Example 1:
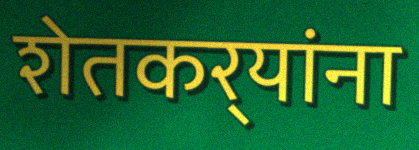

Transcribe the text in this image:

शेतकर्‍यांना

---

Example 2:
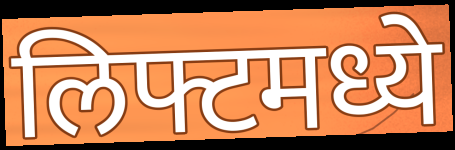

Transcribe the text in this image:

लिफ्टमध्ये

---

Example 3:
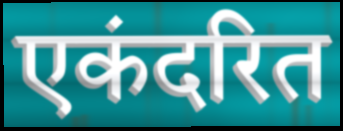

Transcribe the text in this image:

एकंदरित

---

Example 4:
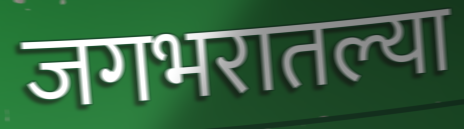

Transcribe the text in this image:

जगभरातल्या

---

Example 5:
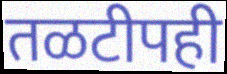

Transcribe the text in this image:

तळटीपही